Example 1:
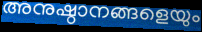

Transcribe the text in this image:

അനുഷ്ഠാനങ്ങളെയും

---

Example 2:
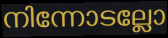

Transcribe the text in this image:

നിന്നോടല്ലോ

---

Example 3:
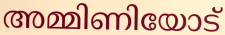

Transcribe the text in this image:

അമ്മിണിയോട്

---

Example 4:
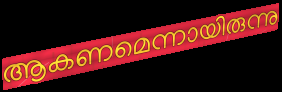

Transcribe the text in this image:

ആകണമെന്നായിരുന്നു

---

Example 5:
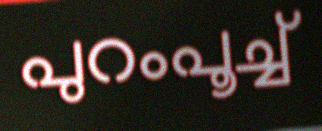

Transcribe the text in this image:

പുറംപൂച്ച്